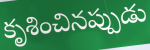
కృశించినప్పుడు